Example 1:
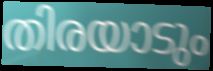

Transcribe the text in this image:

തിരയാടും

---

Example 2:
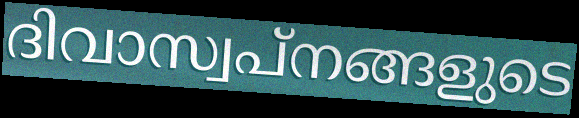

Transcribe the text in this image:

ദിവാസ്വപ്നങ്ങളുടെ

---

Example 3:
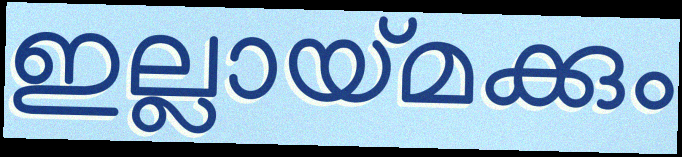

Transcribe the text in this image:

ഇല്ലായ്മക്കും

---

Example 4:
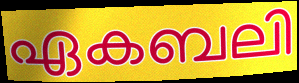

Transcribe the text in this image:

ഏകബലി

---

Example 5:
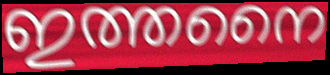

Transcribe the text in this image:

ഇത്തനൈ